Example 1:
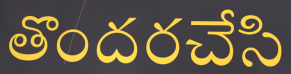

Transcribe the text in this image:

తొందరచేసి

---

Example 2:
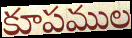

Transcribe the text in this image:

కూపముల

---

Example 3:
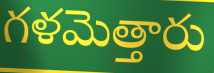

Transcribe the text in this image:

గళమెత్తారు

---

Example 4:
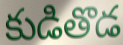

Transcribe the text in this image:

కుడితొడ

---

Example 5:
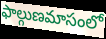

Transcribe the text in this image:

ఫాల్గుణమాసంలో